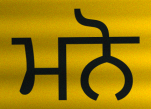
ਮਨੋ